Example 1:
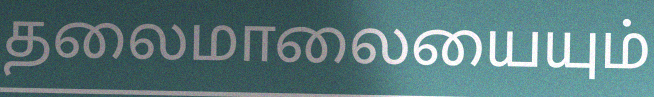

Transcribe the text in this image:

தலைமாலையையும்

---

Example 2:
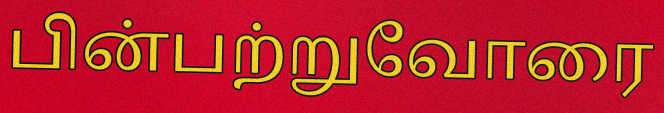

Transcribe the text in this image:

பின்பற்றுவோரை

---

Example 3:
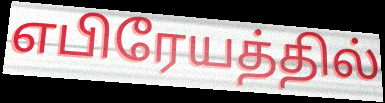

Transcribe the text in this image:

எபிரேயத்தில்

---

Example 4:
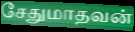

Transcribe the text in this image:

சேதுமாதவன்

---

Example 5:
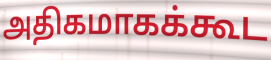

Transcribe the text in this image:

அதிகமாகக்கூட